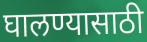
घालण्यासाठी